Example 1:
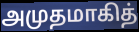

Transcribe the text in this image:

அமுதமாகித்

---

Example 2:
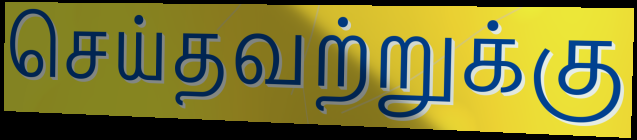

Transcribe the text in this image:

செய்தவற்றுக்கு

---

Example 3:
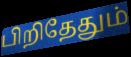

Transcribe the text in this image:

பிறிதேதும்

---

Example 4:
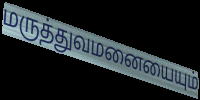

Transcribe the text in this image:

மருத்துவமனையையும்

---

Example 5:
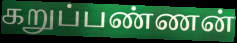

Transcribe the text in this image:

கறுப்பண்ணன்